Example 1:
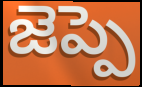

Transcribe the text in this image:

జెప్పె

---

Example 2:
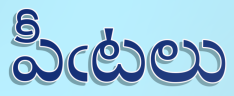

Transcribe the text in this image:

పీఁటలు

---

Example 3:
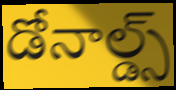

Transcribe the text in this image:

డోనాల్డ్స్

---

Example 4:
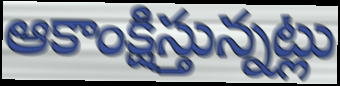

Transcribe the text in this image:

ఆకాంక్షిస్తున్నట్లు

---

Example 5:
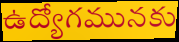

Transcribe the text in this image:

ఉద్యోగమునకు